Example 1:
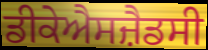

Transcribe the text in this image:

ਡੀਕੇਐਸਜ਼ੈਡਸੀ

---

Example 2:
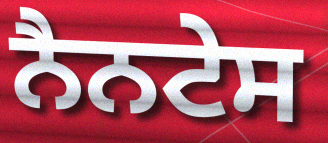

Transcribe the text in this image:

ਨੈਨਟੇਸ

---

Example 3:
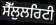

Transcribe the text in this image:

ਸੈੱਲੁਲਰਿਟੀ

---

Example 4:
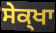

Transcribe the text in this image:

ਸੇਕ੍ਖਾ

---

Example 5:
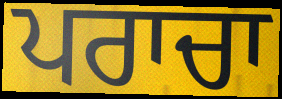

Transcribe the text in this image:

ਪਰਾਚਾ